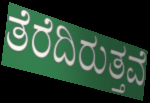
ತೆರೆದಿರುತ್ತವೆ